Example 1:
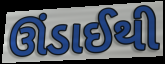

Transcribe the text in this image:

ઊંડાઈથી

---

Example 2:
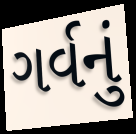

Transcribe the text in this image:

ગર્વનું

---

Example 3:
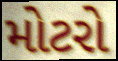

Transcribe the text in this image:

મોટરો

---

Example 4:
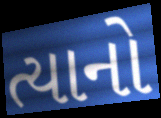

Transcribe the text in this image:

ત્યાનો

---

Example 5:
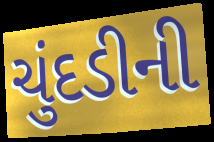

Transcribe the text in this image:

ચુંદડીની